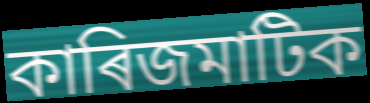
কাৰিজমাটিক